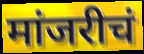
मांजरीचं